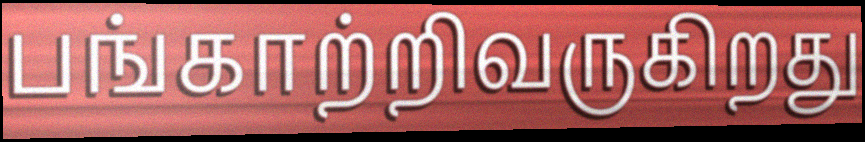
பங்காற்றிவருகிறது